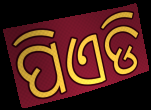
ପିଏଡି